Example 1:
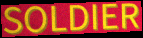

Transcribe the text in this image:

SOLDIER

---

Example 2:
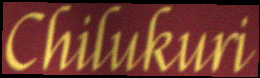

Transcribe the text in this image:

Chilukuri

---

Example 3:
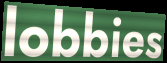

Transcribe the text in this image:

lobbies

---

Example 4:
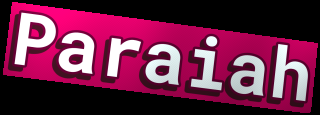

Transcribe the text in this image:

Paraiah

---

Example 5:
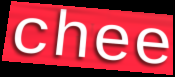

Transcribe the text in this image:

chee